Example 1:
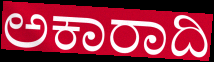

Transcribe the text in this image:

ಅಕಾರಾದಿ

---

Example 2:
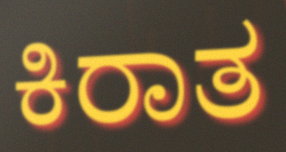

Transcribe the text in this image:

ಕಿರಾತ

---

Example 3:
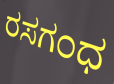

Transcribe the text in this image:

ರಸಗಂಧ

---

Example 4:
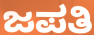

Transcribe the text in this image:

ಜಪತಿ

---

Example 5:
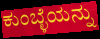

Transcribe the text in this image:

ಕುಂಬ್ಳೆಯನ್ನು